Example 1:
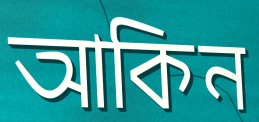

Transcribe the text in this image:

আকিন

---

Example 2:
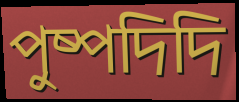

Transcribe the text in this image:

পুষ্পদিদি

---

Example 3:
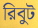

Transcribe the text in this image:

রিবুট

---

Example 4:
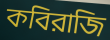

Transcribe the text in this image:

কবিরাজি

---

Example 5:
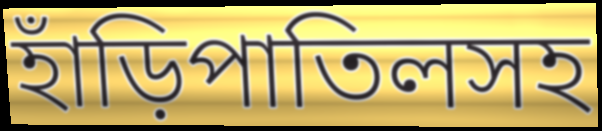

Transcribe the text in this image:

হাঁড়িপাতিলসহ